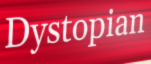
Dystopian